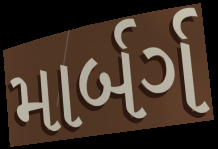
માર્બર્ગ